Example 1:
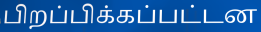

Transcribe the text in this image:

பிறப்பிக்கப்பட்டன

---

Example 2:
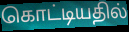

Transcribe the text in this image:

கொட்டியதில்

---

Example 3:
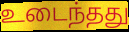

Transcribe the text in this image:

உடைந்தது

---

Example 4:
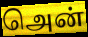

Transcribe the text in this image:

அென்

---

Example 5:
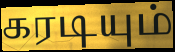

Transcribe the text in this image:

கரடியும்